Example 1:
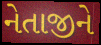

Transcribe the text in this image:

નેતાજીને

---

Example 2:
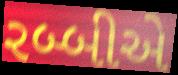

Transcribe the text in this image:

રબ્બીએ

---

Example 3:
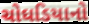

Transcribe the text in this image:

ચોઘડિયાનો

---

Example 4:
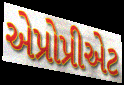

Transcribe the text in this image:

એપ્રોપ્રીએટ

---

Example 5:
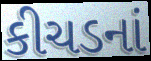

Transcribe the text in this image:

કીચડનાં